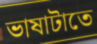
ভাষাটাতে